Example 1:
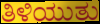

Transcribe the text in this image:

ತಿಳಿಯುತು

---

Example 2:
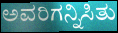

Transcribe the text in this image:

ಅವರಿಗನ್ನಿಸಿತು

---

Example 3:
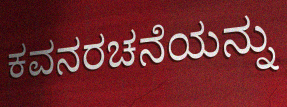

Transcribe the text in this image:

ಕವನರಚನೆಯನ್ನು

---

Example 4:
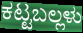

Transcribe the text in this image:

ಕಟ್ಟಬಲ್ಲಳು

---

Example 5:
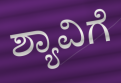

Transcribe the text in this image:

ಶ್ಯಾವಿಗೆ